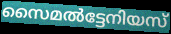
സൈമൽട്ടേനിയസ്